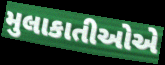
મુલાકાતીઓએ